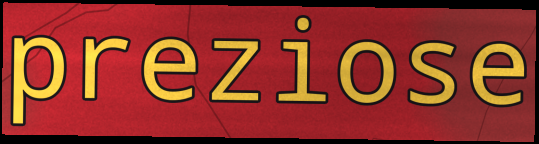
preziose